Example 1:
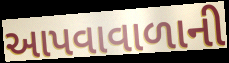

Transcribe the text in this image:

આપવાવાળાની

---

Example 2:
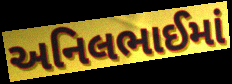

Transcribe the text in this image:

અનિલભાઈમાં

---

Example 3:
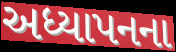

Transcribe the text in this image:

અધ્યાપનના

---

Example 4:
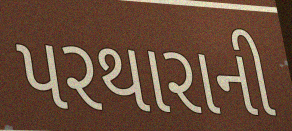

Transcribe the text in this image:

પરથારાની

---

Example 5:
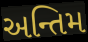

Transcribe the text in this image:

અન્તિમ